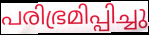
പരിഭ്രമിപ്പിച്ചു